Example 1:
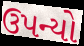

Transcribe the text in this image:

ઉપન્યો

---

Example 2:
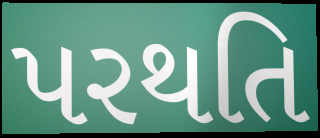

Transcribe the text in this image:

પરથતિ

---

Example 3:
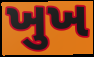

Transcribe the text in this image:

ખુખ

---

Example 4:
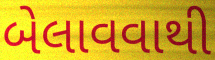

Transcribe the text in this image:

બેલાવવાથી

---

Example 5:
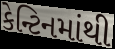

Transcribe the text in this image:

કેન્ટિનમાંથી